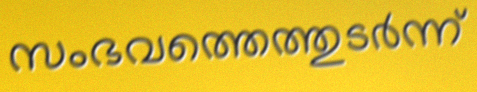
സംഭവത്തെത്തുടർന്ന്